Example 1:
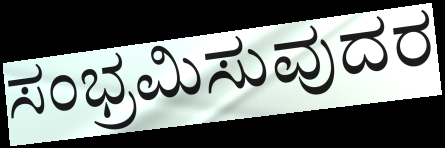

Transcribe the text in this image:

ಸಂಭ್ರಮಿಸುವುದರ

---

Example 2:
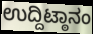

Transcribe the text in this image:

ಉದ್ದಿಟ್ಠಾನಂ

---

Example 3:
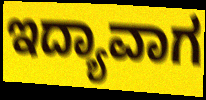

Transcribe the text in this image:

ಇದ್ಯಾವಾಗ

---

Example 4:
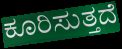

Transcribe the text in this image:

ಕೂರಿಸುತ್ತದೆ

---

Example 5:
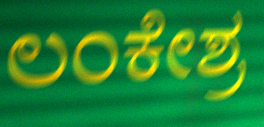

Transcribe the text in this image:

ಲಂಕೇಶ್ರ